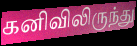
கனிவிலிருந்து